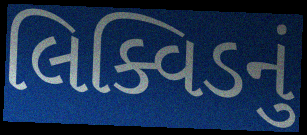
લિક્વિડનું